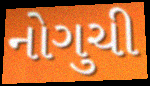
નોગુચી